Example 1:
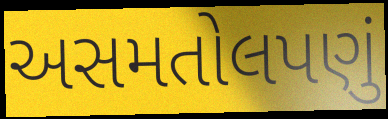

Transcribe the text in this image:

અસમતોલપણું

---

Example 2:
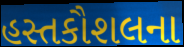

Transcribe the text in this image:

હસ્તકૌશલના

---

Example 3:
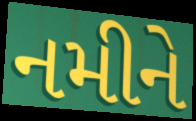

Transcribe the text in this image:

નમીને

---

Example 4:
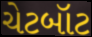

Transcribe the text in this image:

ચેટબૉટ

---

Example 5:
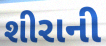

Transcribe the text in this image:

શીરાની